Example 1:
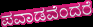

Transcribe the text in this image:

ಪವಾಡವೆಂದರೆ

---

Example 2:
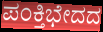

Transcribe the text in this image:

ಪಂಕ್ತಿಭೇದದ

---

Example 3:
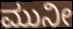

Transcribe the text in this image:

ಮುನೀ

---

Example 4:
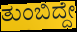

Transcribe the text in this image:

ತುಂಬಿದ್ದೇ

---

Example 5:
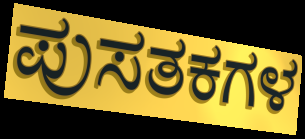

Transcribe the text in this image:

ಪುಸತಕಗಳ